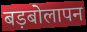
बड़बोलापन